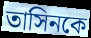
তাসিনকে